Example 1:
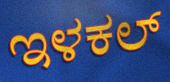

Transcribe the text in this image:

ಇಳಕಲ್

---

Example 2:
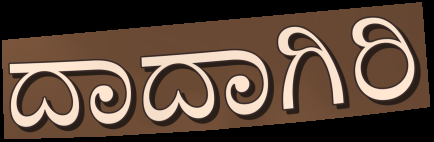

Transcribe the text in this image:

ದಾದಾಗಿರಿ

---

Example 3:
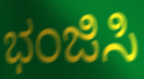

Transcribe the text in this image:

ಭಂಜಿಸಿ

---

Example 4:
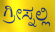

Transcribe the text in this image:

ಗ್ರೀಸ್ನಲ್ಲಿ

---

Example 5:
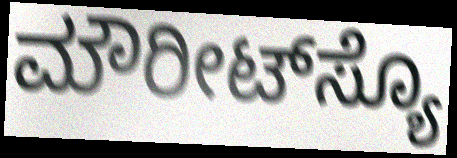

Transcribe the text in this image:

ಮೌರೀಟ್‌ಸ್ಯೊ